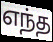
எந்த